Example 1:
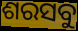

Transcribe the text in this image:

ଶରସବୁ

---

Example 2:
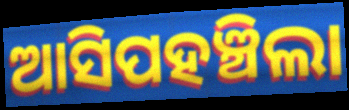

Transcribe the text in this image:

ଆସିପହଞ୍ଚିଲା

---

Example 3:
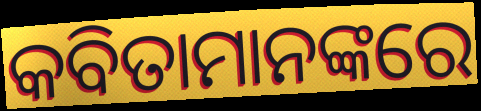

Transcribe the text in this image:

କବିତାମାନଙ୍କରେ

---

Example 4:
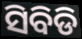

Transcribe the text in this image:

ସିବିଡି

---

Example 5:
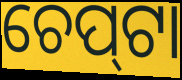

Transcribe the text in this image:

ଚେପ୍‍ଟା